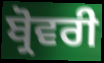
ਬ੍ਰੋਵਰੀ